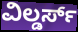
ವಿಲ್ಡರ್ಸ್